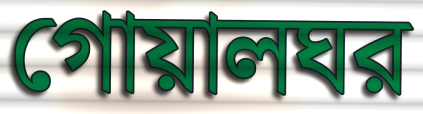
গোয়ালঘর